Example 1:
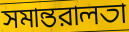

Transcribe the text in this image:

সমান্তরালতা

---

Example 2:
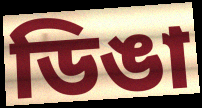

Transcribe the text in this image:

ডিঙা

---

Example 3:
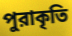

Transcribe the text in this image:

পুরাকৃতি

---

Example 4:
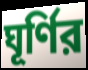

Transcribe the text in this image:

ঘূর্ণির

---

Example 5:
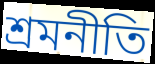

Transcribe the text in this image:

শ্রমনীতি